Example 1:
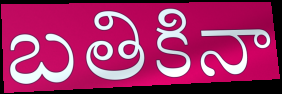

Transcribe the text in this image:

బతికినా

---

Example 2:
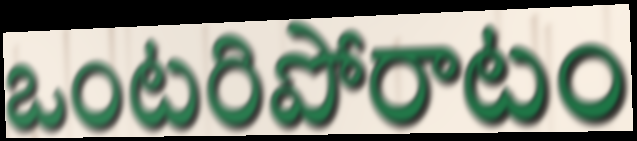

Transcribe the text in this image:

ఒంటరిపోరాటం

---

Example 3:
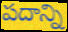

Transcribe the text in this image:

పదాన్ని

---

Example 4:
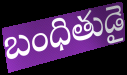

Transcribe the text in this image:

బంధితుడై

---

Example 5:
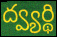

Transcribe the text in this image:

ద్వ్యర్థి